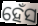
ହେଁସ